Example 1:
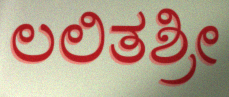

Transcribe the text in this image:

ಲಲಿತಶ್ರೀ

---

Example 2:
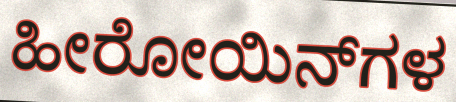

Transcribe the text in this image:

ಹೀರೋಯಿನ್‌ಗಳ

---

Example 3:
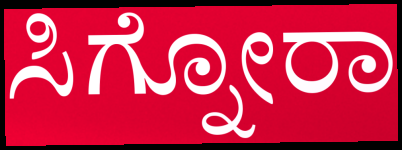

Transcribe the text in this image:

ಸಿಗ್ನೋರಾ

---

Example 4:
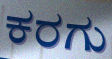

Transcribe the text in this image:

ಕರಗು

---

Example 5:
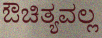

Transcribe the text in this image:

ಔಚಿತ್ಯವಲ್ಲ